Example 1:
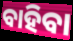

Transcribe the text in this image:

ବାହିବା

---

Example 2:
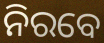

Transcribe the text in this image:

ନିରବେ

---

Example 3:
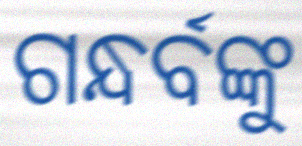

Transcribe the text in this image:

ଗନ୍ଧର୍ବଙ୍କୁ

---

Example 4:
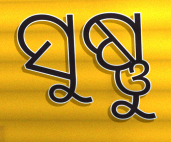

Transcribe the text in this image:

ସୁଷ୍ଣୁ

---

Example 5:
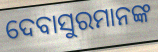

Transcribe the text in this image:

ଦେବାସୁରମାନଙ୍କ